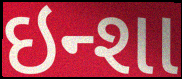
ઇન્શા